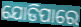
ଯୋଡିପାରେ